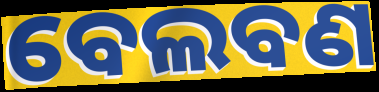
ବେଲବଣ